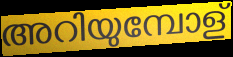
അറിയുമ്പോള്